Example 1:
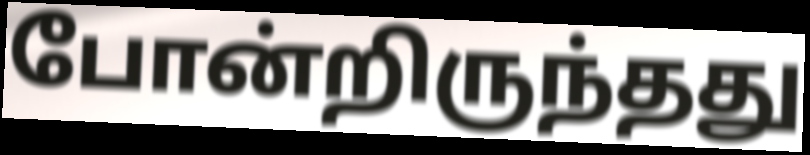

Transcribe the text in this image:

போன்றிருந்தது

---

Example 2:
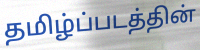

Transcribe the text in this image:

தமிழ்ப்படத்தின்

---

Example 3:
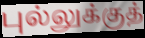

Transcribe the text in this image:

புல்லுக்குத்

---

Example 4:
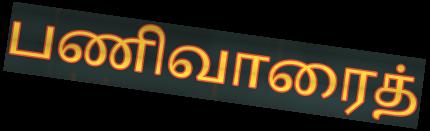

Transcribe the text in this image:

பணிவாரைத்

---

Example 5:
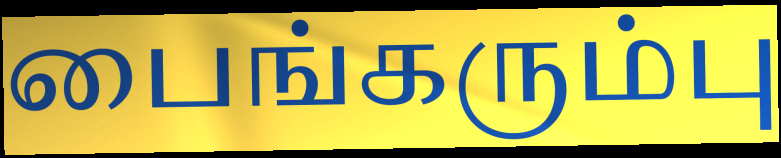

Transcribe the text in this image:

பைங்கரும்பு